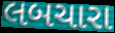
લબચારા